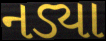
નડ્યા